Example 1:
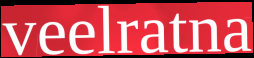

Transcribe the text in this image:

veelratna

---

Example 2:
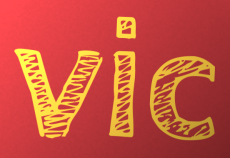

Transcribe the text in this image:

vic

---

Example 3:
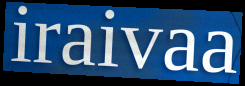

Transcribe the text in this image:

iraivaa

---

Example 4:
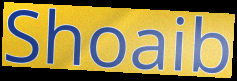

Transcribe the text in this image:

Shoaib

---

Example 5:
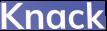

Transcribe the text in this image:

Knack